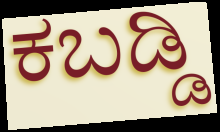
ಕಬಡ್ಡಿ